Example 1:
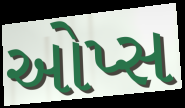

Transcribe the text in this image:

ઓપ્સ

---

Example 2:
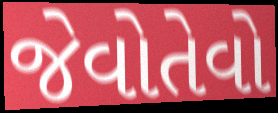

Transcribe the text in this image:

જેવોતેવો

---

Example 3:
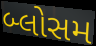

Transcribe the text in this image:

બ્લોસમ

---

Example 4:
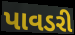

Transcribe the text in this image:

પાવડરી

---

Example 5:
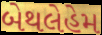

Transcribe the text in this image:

બેથલેહેમ